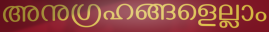
അനുഗ്രഹങ്ങളെല്ലാം